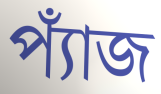
প্যাঁজ